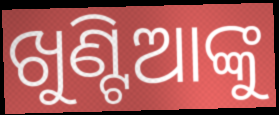
ଖୁଣ୍ଟିଆଙ୍କୁ